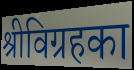
श्रीविग्रहका